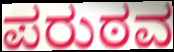
ಪರುಠವ